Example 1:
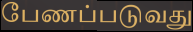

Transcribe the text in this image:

பேணப்படுவது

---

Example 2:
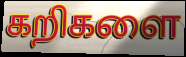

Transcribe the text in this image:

கறிகளை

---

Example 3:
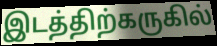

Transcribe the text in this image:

இடத்திற்கருகில்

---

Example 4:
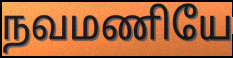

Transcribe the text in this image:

நவமணியே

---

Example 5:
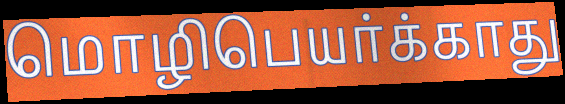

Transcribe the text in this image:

மொழிபெயர்க்காது